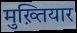
मुख़्तियार